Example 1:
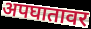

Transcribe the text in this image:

अपघातावर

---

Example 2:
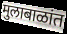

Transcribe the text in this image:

मुलाबाळांत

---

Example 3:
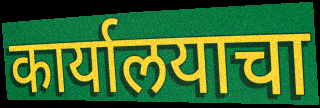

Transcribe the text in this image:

कार्यालयाचा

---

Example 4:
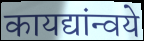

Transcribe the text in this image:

कायद्यांन्वये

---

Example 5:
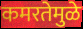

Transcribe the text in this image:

कमरतेमुळे